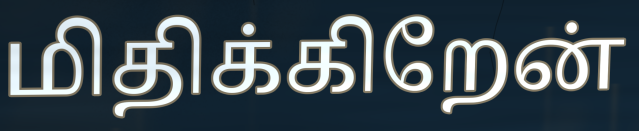
மிதிக்கிறேன்